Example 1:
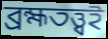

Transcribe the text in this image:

ব্রহ্মতত্ত্বই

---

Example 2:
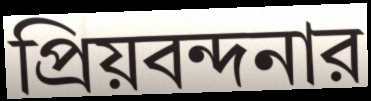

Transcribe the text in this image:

প্রিয়বন্দনার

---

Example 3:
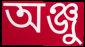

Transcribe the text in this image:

অঞ্জু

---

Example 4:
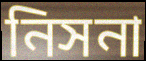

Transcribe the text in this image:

নিসনা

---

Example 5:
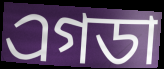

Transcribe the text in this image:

এগডা